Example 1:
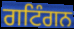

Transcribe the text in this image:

ਗਟਿੰਗਨ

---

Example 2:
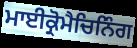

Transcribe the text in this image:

ਮਾਈਕ੍ਰੋਮੈਚਿਨਿੰਗ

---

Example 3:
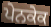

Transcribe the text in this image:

ਪੇਨਕੇਕ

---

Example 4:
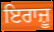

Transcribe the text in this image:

ਇਰਾਜ਼ੂ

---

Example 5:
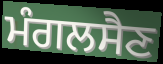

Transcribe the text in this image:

ਮੰਗਲਸੈਣ